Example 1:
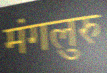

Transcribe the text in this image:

मंगलुरु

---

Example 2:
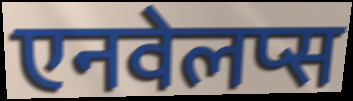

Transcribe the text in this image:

एनवेलप्स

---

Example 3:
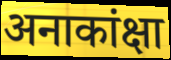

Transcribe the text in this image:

अनाकांक्षा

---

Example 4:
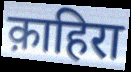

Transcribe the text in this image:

क़ाहिरा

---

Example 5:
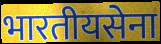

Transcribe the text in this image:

भारतीयसेना